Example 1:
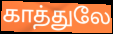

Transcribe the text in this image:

காத்துலே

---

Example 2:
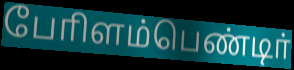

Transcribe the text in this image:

பேரிளம்பெண்டிர்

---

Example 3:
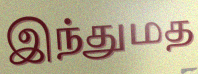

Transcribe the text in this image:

இந்துமத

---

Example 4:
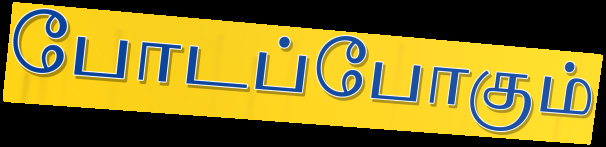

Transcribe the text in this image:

போடப்போகும்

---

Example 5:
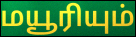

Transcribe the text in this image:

மயூரியும்